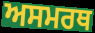
ਅਸਮਰਥ